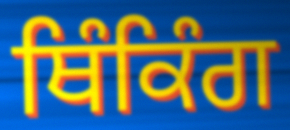
ਥਿੰਕਿੰਗ